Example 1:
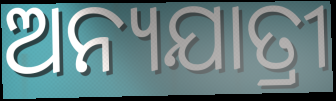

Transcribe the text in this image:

ଅନ୍ଯଯାତ୍ରୀ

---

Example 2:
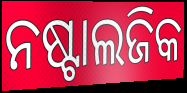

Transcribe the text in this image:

ନଷ୍ଟାଲଜିକ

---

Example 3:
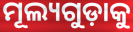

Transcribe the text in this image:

ମୂଲ୍ୟଗୁଡ଼ାକୁ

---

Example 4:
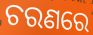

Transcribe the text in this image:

ଚରଣରେ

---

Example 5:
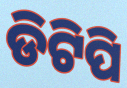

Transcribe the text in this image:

ଡିଟିପି